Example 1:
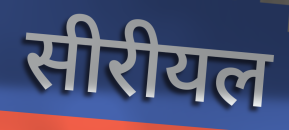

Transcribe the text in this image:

सीरीयल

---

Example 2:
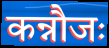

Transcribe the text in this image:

कन्नौजः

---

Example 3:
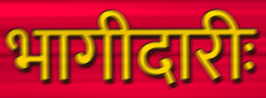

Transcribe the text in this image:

भागीदारीः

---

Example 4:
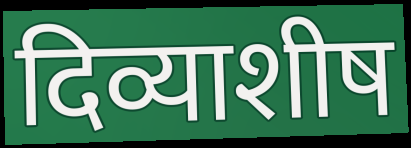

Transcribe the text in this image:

दिव्याशीष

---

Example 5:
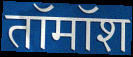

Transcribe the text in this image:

तॉमॉश